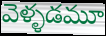
వెళ్ళడమూ